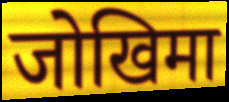
जोखिमा